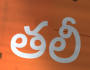
తలీ